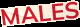
MALES